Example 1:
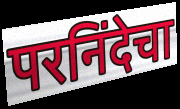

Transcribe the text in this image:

परनिंदेचा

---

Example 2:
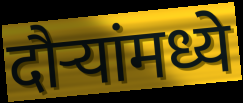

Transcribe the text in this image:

दौऱ्यांमध्ये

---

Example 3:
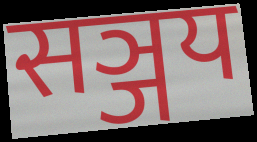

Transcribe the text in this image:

सञ्जय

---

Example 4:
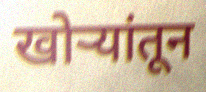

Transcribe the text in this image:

खोऱ्यांतून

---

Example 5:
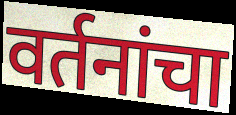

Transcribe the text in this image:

वर्तनांचा